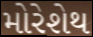
મોરેશેથ